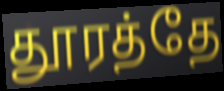
தூரத்தே